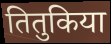
तितुकिया